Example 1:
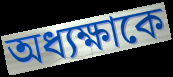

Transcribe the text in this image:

অধ্যক্ষাকে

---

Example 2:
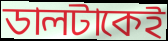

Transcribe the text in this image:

ডালটাকেই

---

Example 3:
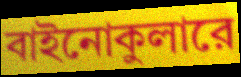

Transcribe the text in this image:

বাইনোকুলারে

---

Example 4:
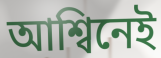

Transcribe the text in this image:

আশ্বিনেই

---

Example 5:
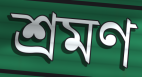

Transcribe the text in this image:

শ্রমণ